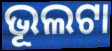
ଭୂଲଟା